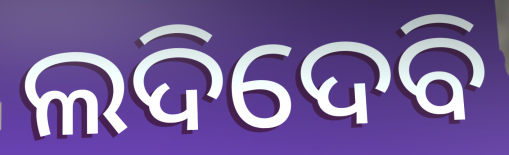
ଲଦିଦେବି